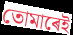
তোমাৰেই